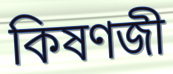
কিষণজী